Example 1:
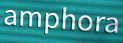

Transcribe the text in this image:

amphora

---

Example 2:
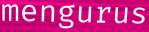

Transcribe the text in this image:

mengurus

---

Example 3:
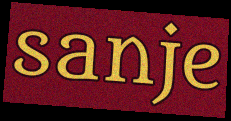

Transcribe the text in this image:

sanje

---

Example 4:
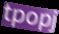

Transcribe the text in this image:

tpopj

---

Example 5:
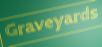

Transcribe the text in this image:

Graveyards